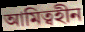
আমিত্বহীন